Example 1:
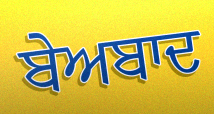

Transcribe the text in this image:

ਬੇਅਬਾਦ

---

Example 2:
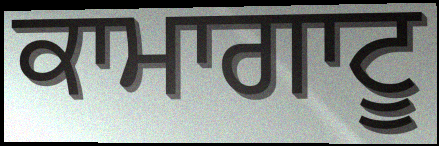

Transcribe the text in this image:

ਕਾਮਾਗਾਟੂ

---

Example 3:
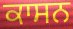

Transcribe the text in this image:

ਕਾਸਨ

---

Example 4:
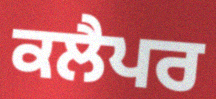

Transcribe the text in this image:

ਕਲੈਪਰ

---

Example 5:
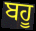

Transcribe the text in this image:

ਬਹੂ